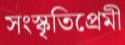
সংস্কৃতিপ্রেমী